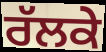
ਰੱਲਕੇ